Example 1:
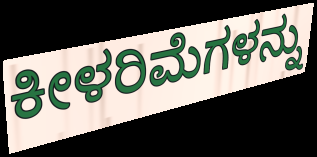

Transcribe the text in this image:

ಕೀಳರಿಮೆಗಳನ್ನು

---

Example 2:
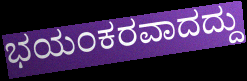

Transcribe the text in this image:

ಭಯಂಕರವಾದದ್ದು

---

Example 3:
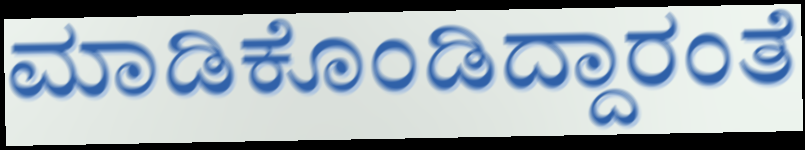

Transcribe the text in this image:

ಮಾಡಿಕೊಂಡಿದ್ದಾರಂತೆ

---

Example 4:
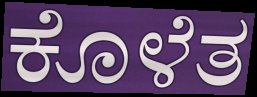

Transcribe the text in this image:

ಕೊಳೆತ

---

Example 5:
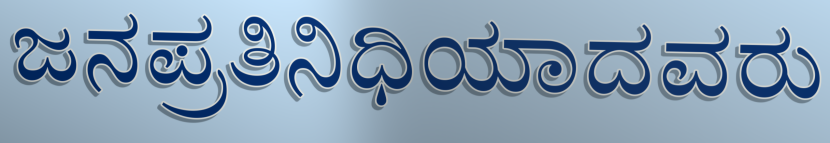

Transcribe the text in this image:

ಜನಪ್ರತಿನಿಧಿಯಾದವರು